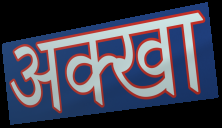
अक्खा